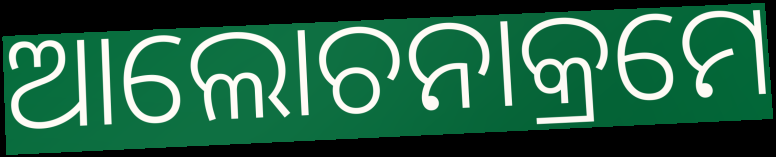
ଆଲୋଚନାକ୍ରମେ